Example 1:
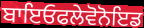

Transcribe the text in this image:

ਬਾਇਓਫਲੇਵੋਨੋਇਡ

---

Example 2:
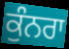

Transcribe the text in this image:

ਕੁੰਨਰਾ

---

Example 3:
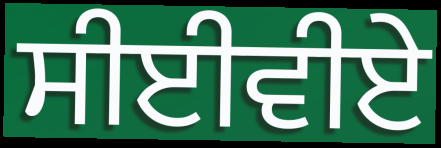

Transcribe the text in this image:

ਸੀਈਵੀਏ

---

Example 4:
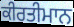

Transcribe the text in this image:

ਕੀਰਤੀਮਾਨ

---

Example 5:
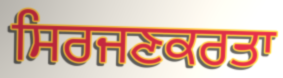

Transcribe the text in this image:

ਸਿਰਜਣਕਰਤਾ